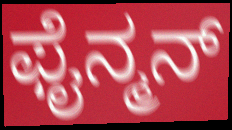
ಫೈನ್ಮನ್